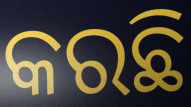
କରଛି